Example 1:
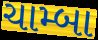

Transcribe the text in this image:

ચામ્બા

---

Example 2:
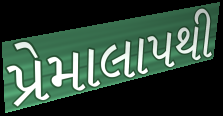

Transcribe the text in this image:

પ્રેમાલાપથી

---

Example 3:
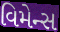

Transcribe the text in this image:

વિમેન્સ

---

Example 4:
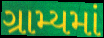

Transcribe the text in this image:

ગ્રામ્યમાં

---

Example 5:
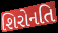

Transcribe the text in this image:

શિરોનતિ